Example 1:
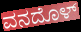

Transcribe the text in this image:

ವನದೊಳ್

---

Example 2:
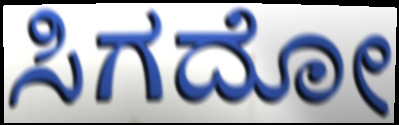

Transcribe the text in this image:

ಸಿಗದೋ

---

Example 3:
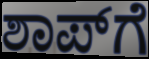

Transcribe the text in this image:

ಶಾಪ್‌ಗೆ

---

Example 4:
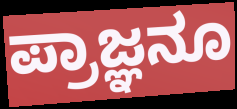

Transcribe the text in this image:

ಪ್ರಾಜ್ಞನೂ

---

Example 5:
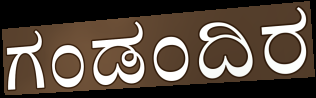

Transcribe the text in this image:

ಗಂಡಂದಿರ